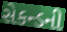
સેકન્ડની